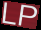
LP